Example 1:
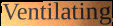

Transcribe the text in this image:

Ventilating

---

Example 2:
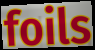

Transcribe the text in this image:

foils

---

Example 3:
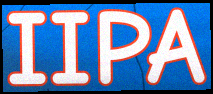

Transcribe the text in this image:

IIPA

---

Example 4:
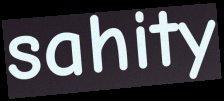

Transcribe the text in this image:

sahity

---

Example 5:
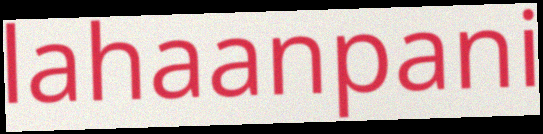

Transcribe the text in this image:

lahaanpani